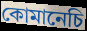
কোমানেচি